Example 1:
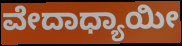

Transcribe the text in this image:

ವೇದಾಧ್ಯಾಯೀ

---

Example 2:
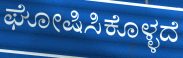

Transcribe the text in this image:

ಘೋಷಿಸಿಕೊಳ್ಳದೆ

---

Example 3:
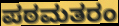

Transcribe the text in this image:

ಪಠಮತರಂ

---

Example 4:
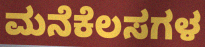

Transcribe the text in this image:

ಮನೆಕೆಲಸಗಳ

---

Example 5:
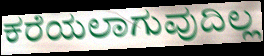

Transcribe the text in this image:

ಕರೆಯಲಾಗುವುದಿಲ್ಲ